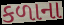
કળાના